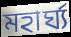
মহার্ঘ্য